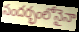
సందర్భంలోనైనా